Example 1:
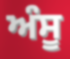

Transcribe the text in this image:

ਅੰਸੂ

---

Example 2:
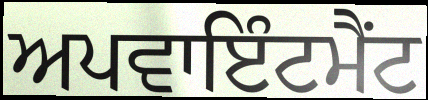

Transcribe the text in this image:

ਅਪਵਾਇੰਟਮੈਂਟ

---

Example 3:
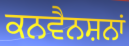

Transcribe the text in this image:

ਕਨਵੈਨਸ਼ਨਾਂ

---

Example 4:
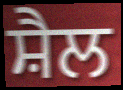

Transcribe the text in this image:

ਸ਼ੈਲ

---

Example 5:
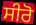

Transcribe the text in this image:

ਸੀਰੋ